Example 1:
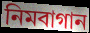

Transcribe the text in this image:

নিমবাগান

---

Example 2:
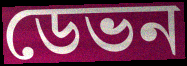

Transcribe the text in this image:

ডেভন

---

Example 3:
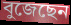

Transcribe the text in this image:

বুজেছেন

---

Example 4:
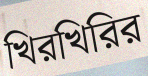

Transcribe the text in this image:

খিরখিরির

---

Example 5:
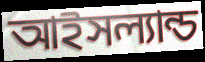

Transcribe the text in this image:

আইসল্যান্ড